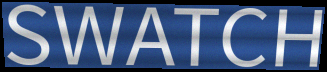
SWATCH